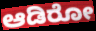
ಆಡಿರೋ